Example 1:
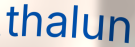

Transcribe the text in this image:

thalun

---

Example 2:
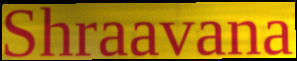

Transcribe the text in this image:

Shraavana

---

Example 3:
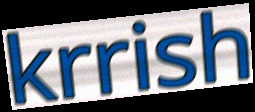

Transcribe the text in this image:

krrish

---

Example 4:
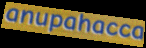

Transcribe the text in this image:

anupahacca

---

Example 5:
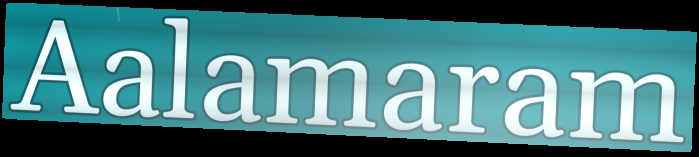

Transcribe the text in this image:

Aalamaram